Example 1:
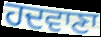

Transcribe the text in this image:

ਹਦਵਾਣਾ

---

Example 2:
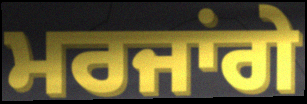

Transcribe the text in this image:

ਮਰਜਾਂਗੇ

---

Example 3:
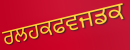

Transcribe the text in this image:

ਰਲਹਕਫਵਜਡਕ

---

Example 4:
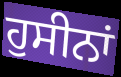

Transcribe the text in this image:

ਹੁਸੀਨਾਂ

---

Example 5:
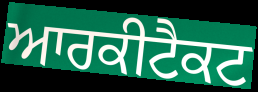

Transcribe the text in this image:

ਆਰਕੀਟੈਕਟ